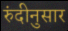
रुंदीनुसार